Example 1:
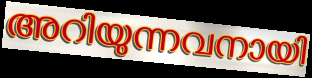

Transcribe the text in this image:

അറിയുന്നവനായി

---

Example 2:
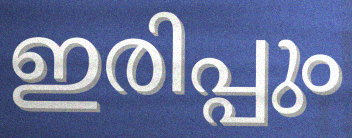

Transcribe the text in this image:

ഇരിപ്പും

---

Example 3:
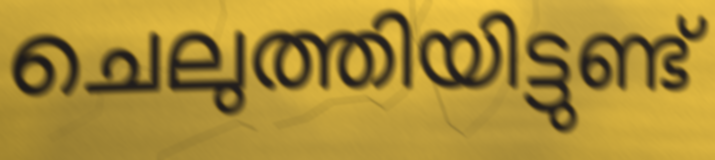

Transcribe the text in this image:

ചെലുത്തിയിട്ടുണ്ട്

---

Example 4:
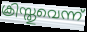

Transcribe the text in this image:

ക്രിസ്തുവെന്ന്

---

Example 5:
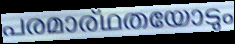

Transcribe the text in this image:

പരമാര്ഥതയോടും